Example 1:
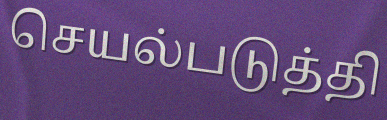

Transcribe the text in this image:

செயல்படுத்தி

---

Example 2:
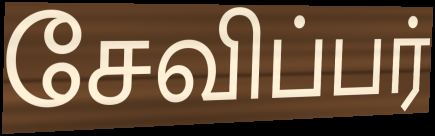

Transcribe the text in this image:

சேவிப்பர்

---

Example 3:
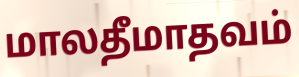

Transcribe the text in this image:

மாலதீமாதவம்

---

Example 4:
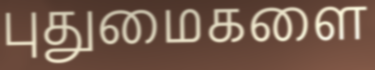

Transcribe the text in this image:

புதுமைகளை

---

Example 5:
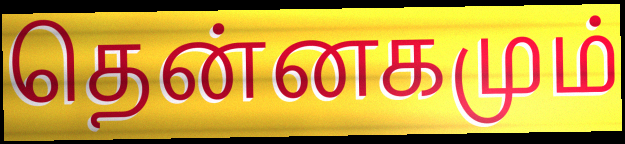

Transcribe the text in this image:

தென்னகமும்